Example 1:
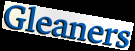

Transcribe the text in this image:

Gleaners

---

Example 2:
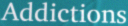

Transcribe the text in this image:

Addictions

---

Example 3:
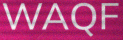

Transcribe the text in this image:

WAQF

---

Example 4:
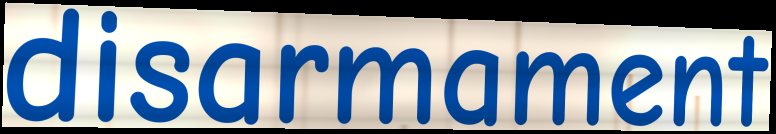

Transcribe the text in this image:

disarmament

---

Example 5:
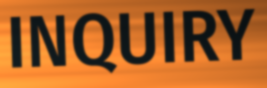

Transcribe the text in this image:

INQUIRY